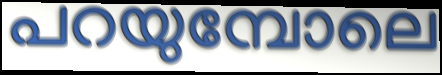
പറയുമ്പോലെ